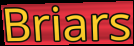
Briars